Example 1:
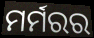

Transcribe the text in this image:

ମର୍ମରର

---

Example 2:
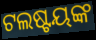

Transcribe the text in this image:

ଟଲଷ୍ଟୟଙ୍କ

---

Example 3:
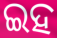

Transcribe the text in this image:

ଇହ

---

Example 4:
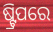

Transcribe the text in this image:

ଷ୍ଟ୍ରିପରେ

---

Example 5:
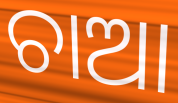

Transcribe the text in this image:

ଚାଆ